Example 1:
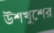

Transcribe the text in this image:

উশখুশের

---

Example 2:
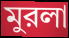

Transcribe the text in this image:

মুরলা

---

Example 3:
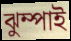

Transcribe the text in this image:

ঝুম্পাই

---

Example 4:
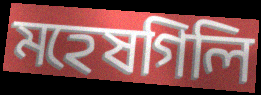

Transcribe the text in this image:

মহেষগিলি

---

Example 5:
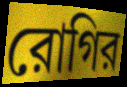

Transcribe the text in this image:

রোগির